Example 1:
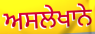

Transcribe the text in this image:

ਅਸਲੇਖਾਨੇ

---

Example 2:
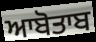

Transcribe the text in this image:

ਆਬੋਤਾਬ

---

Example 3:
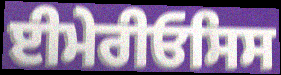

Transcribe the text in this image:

ਈਮੇਰੀਓਸਿਸ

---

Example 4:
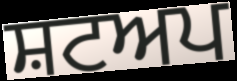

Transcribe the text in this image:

ਸ਼ਟਅਪ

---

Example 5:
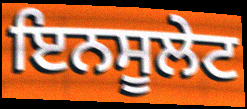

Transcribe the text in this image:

ਇਨਸੂਲੇਟ